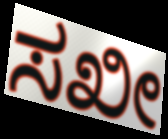
ಸಖೀ